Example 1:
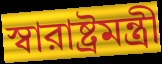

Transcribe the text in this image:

স্বারাষ্ট্রমন্ত্রী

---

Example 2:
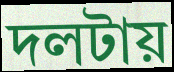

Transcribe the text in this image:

দলটায়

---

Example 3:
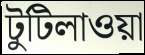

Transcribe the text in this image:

টুটিলাওয়া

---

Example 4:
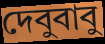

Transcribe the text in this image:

দেবুবাবু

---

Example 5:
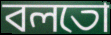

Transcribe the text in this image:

বলতো